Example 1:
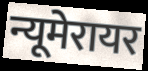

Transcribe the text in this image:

न्यूमेरायर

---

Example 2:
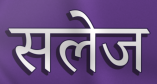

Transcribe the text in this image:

सलेज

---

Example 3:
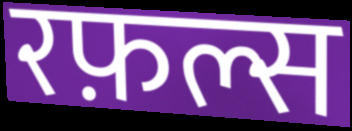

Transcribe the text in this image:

रफ़ल्स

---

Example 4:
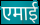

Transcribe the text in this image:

एमाई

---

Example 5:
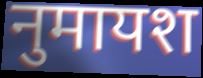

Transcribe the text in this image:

नुमायश